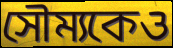
সৌম্যকেও